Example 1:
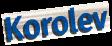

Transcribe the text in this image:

Korolev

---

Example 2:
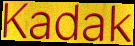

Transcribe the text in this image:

Kadak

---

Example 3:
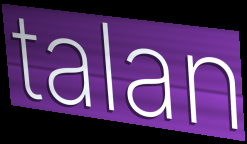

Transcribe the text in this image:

talan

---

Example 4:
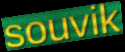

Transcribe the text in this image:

souvik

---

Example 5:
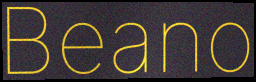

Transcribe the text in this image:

Beano